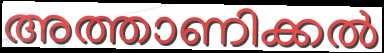
അത്താണിക്കൽ